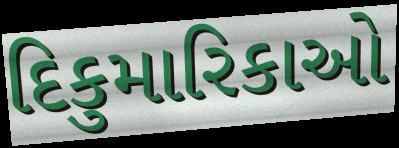
દિકુમારિકાઓ